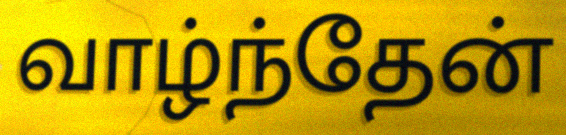
வாழ்ந்தேன்